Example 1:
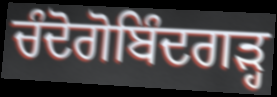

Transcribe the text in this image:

ਚੰਦੋਗੋਬਿੰਦਗੜ੍ਹ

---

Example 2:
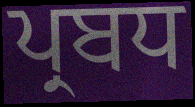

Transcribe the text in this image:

ਪ੍ਰਬਧ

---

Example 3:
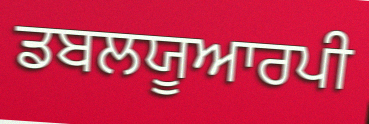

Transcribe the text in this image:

ਡਬਲਯੂਆਰਪੀ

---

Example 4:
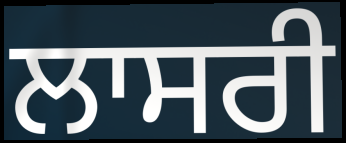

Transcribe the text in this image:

ਲਾਸਰੀ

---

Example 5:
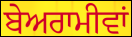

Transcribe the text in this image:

ਬੇਅਰਾਮੀਵਾਂ